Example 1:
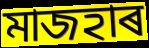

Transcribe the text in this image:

মাজহাৰ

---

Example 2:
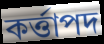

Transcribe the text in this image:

কৰ্ত্তাপদ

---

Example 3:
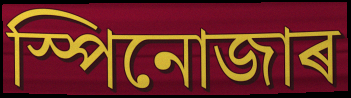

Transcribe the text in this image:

স্পিনোজাৰ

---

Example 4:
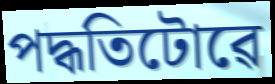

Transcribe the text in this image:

পদ্ধতিটোৱে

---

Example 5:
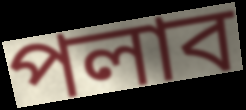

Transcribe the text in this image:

পলাব